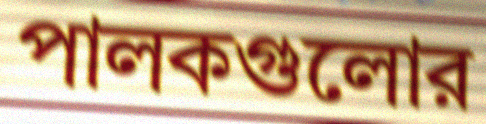
পালকগুলোর